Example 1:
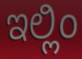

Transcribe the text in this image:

ಇಲ್ಲಿಂ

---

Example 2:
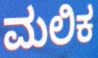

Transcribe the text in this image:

ಮಲಿಕ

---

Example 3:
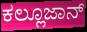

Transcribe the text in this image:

ಕಲ್ಲೂಜಾನ್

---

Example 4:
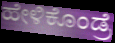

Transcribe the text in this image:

ಹೇಳಿಕೊಂಡ್ರೆ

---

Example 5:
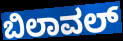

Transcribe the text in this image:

ಬಿಲಾವಲ್